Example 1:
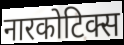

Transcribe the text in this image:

नारकोटिक्स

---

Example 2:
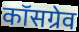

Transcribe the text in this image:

कॉसग्रेव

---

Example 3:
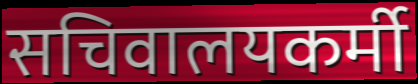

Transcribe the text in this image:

सचिवालयकर्मी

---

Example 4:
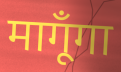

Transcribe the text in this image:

मागूँगा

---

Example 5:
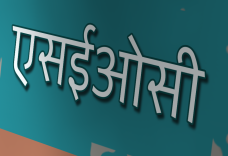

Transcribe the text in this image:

एसईओसी